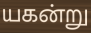
யகன்று